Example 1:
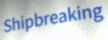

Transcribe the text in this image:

Shipbreaking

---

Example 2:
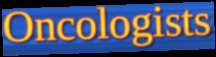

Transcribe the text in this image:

Oncologists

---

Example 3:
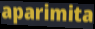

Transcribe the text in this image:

aparimita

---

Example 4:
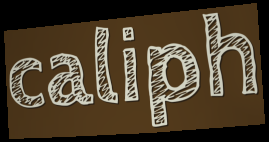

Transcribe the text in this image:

caliph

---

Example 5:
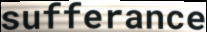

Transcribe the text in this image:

sufferance